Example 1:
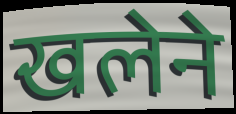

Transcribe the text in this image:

खलेने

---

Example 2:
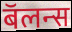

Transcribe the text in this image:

बॅलन्स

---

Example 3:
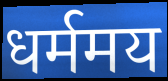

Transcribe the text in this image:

धर्ममय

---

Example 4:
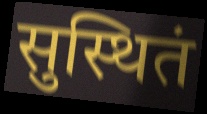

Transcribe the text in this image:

सुस्थितं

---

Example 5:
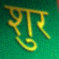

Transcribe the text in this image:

शुर